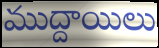
ముద్దాయిలు